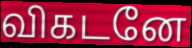
விகடனே